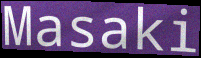
Masaki